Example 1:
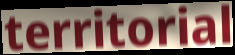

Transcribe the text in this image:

territorial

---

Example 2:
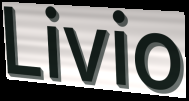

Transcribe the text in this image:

Livio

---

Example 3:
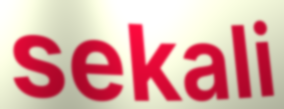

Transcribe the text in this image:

sekali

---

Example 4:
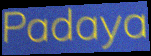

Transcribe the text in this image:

Padaya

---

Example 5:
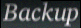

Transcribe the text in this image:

Backup